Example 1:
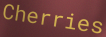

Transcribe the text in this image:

Cherries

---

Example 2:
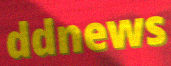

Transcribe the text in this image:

ddnews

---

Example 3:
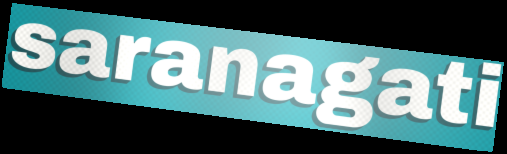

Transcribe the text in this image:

saranagati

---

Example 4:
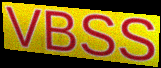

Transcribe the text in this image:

VBSS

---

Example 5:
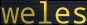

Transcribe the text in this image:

weles